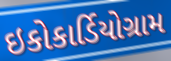
ઇકોકાર્ડિયોગ્રામ